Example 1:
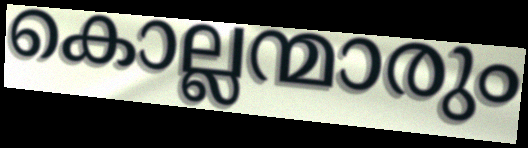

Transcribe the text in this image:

കൊല്ലന്മാരും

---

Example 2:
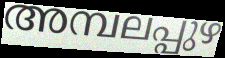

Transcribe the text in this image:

അമ്പലപ്പുഴ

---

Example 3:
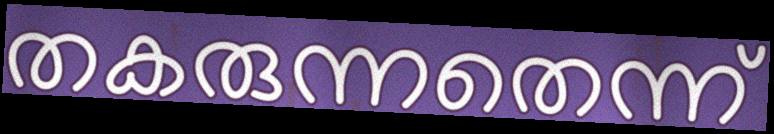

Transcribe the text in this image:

തകരുന്നതെന്ന്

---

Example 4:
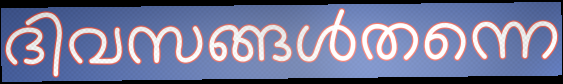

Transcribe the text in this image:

ദിവസങ്ങൾതന്നെ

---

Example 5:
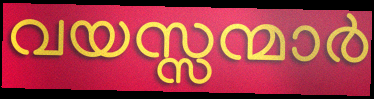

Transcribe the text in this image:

വയസ്സന്മാർ